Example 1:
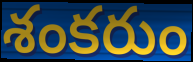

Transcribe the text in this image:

శంకరుం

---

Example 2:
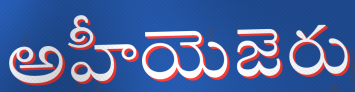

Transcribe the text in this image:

అహీయెజెరు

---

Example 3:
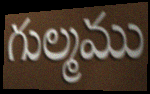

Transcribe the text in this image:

గుల్మము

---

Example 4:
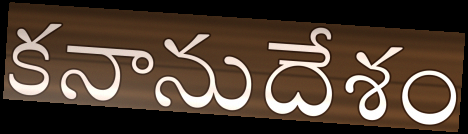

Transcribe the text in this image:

కనానుదేశం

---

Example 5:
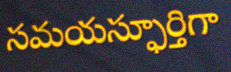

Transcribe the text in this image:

సమయస్ఫూర్తిగా